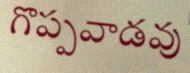
గొప్పవాడవు